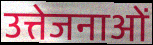
उत्तेजनाओं